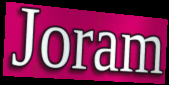
Joram